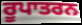
ਰੂਪਾਤਰਨ